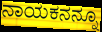
ನಾಯಕನನ್ನೂ